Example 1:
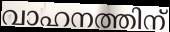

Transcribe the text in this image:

വാഹനത്തിന്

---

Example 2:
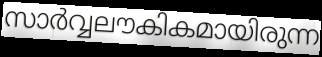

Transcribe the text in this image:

സാർവ്വലൗകികമായിരുന്ന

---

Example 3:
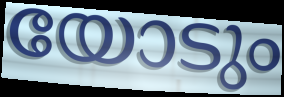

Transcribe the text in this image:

യോടും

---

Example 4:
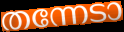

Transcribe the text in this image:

തന്നേടാ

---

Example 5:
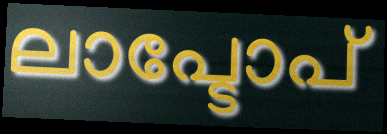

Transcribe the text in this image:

ലാപ്ടോപ്